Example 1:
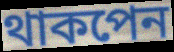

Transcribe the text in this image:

থাকপেন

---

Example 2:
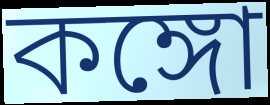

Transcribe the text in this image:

কঙ্গো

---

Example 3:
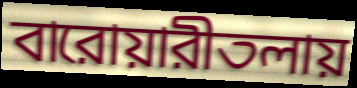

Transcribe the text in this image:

বারোয়ারীতলায়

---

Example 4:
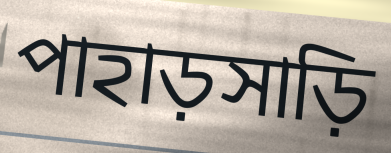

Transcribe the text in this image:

পাহাড়সাড়ি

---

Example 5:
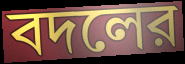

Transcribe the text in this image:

বদলের